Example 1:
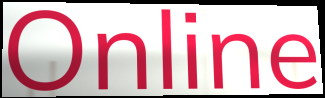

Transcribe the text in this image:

Online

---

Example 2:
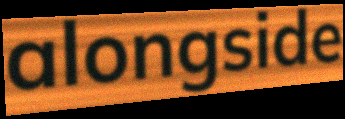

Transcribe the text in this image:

alongside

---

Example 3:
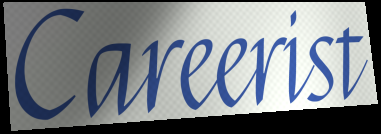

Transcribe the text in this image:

Careerist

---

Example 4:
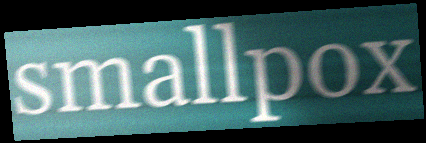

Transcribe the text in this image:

smallpox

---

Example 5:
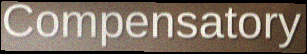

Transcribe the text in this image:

Compensatory